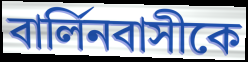
বার্লিনবাসীকে